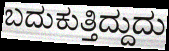
ಬದುಕುತ್ತಿದ್ದುದು